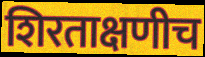
शिरताक्षणीच